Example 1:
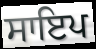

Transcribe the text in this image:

ਸਾਇਪ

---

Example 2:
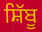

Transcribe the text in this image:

ਸ਼ਿੱਬੂ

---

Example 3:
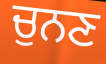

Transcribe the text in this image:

ਚੁਨਣ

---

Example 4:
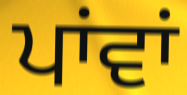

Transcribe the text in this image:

ਪਾਂਵਾਂ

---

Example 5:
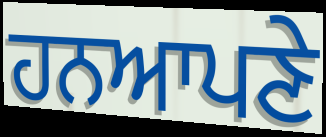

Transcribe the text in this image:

ਹਨਆਪਣੇ